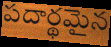
పదార్థమైన